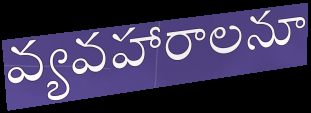
వ్యవహారాలనూ